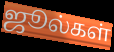
ஜூல்கள்